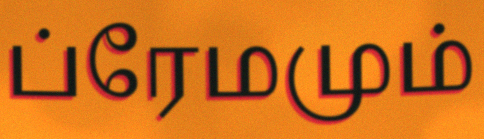
ப்ரேமமும்